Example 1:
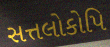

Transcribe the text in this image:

સત્તલોકોપિ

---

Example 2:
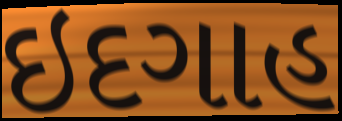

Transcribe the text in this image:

ઇદગાહ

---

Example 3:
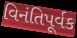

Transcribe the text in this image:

વિનંતિપૂર્વક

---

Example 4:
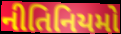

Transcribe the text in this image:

નીતિનિયમો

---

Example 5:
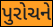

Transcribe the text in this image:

પુરોચને